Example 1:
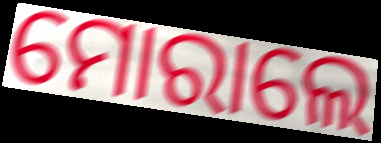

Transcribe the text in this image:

ମୋରାଲେ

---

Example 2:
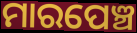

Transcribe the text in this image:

ମାରପେଞ୍ଚ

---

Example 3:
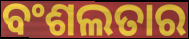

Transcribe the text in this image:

ବଂଶଲତାର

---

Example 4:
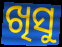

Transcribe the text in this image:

ଖିସୁ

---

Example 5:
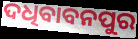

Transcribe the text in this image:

ଦଧିବାବନପୁର